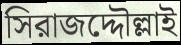
সিরাজদ্দৌল্লাই